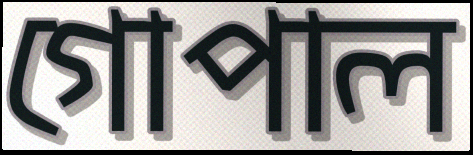
গোপাল